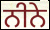
ਨੀਨੇ